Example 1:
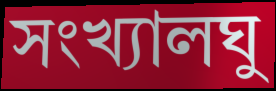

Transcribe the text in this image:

সংখ্যালঘু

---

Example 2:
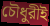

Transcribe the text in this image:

চৌধুরীই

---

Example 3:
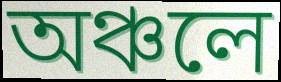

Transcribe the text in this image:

অঞ্চলে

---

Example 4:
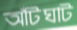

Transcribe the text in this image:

আঁটঘাট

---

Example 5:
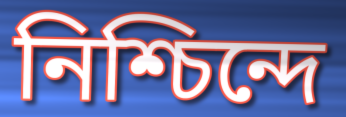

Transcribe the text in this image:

নিশ্চিন্দে